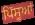
ਪਿੱਸੂਆਂ